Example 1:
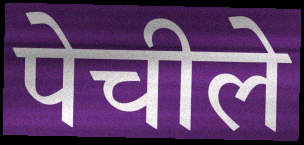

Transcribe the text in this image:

पेचीले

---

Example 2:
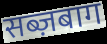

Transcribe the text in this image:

सब्ज़बाग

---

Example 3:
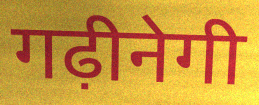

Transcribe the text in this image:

गढ़ीनेगी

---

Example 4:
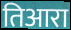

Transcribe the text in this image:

तिआरा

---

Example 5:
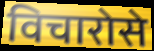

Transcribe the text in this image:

विचारोसे